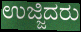
ಉಜ್ಜಿದರು